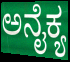
ಅನೈಕ್ಯ